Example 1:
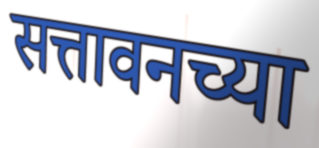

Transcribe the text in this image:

सत्तावनच्या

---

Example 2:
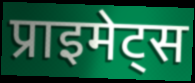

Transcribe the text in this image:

प्राइमेट्स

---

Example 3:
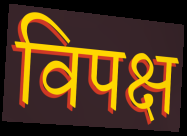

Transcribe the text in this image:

विपक्ष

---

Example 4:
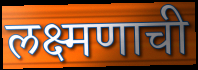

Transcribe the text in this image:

लक्ष्मणाची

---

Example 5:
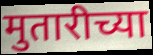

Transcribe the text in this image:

मुतारीच्या